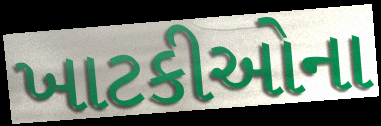
ખાટકીઓના